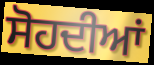
ਸੋਹਦੀਆਂ